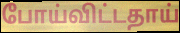
போய்விட்டதாய்